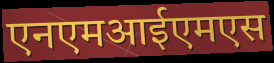
एनएमआईएमएस